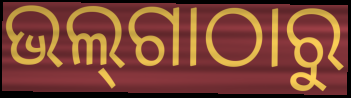
ଭଲ୍‌ଗାଠାରୁ